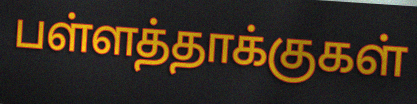
பள்ளத்தாக்குகள்